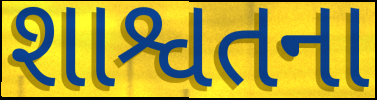
શાશ્વતના